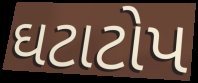
ઘટાટોપ